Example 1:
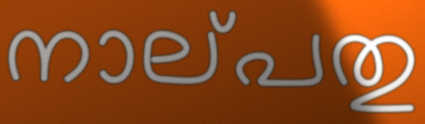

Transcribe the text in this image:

നാല്‌പതു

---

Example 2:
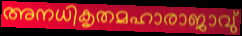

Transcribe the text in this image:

അനധികൃതമഹാരാജാവു്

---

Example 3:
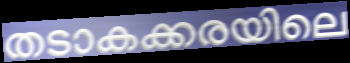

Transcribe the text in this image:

തടാകക്കരയിലെ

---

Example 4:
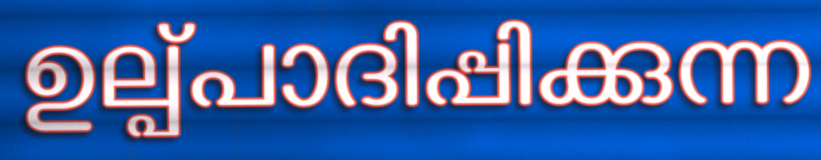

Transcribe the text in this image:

ഉല്പ്പാദിപ്പിക്കുന്ന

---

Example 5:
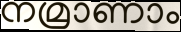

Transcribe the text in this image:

നമ്രാണാം